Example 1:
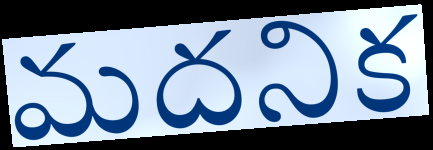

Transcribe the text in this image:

మదనిక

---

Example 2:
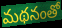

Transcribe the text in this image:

మథనంతో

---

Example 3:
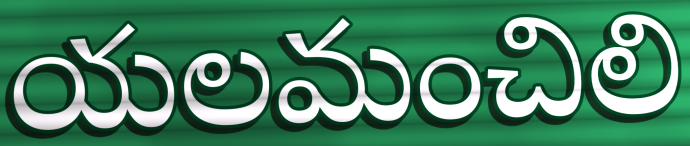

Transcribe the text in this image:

యలమంచిలి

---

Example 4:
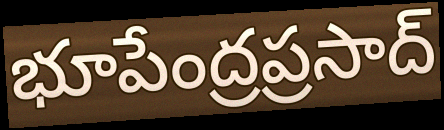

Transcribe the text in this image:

భూపేంద్రప్రసాద్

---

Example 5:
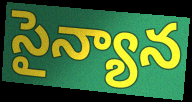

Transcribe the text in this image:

సైన్యాన